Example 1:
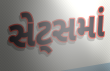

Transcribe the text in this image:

સેટ્સમાં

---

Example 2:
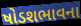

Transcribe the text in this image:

ષોડશભાવના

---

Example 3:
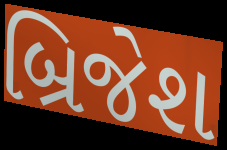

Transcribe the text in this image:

બ્રિજેશ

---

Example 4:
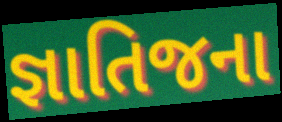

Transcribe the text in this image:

જ્ઞાતિજના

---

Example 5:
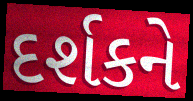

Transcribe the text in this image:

દર્શકને